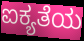
ಐಕ್ಯತೆಯ